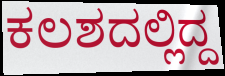
ಕಲಶದಲ್ಲಿದ್ದ